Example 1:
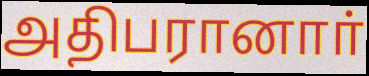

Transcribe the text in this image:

அதிபரானார்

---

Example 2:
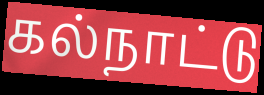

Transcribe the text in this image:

கல்நாட்டு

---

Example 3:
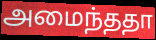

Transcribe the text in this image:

அமைந்ததா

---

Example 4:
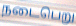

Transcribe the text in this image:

நடைபெறு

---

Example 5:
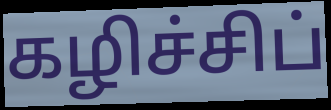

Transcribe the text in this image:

கழிச்சிப்